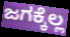
ಜಗಕ್ಕೆಲ್ಲ